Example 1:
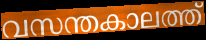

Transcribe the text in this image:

വസന്തകാലത്ത്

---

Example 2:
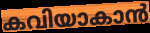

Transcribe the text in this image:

കവിയാകാൻ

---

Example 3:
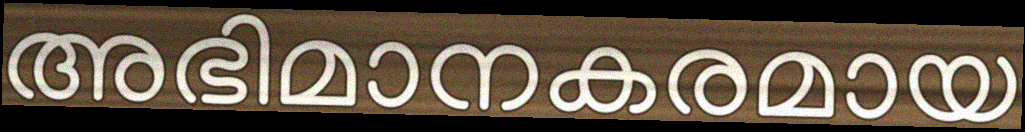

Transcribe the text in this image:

അഭിമാനകരമായ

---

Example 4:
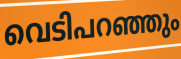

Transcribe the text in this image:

വെടിപറഞ്ഞും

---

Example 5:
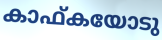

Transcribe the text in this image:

കാഫ്കയോടു